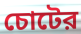
চোটের